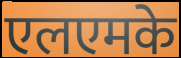
एलएमके